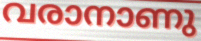
വരാനാണു